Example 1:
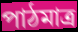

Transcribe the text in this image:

পাঠমাত্র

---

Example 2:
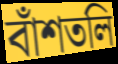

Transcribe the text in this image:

বাঁশতলি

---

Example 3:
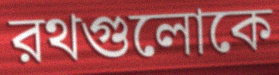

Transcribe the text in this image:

রথগুলোকে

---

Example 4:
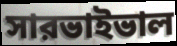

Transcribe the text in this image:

সারভাইভাল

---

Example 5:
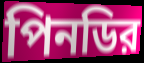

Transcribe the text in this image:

পিনডির